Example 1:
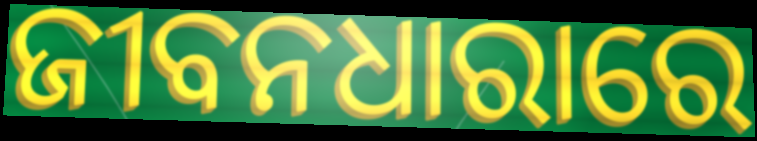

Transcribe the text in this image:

ଜୀବନଧାରାରେ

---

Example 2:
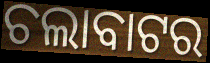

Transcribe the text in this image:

ଚଲାବାଟର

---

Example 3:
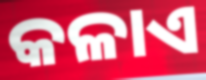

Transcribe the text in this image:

କଳାଏ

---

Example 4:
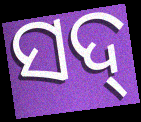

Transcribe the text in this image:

ସଦ୍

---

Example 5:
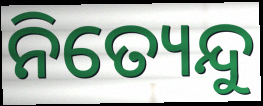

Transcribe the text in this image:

ନିତ୍ୟେନ୍ଦୁ